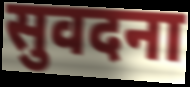
सुवदना